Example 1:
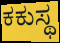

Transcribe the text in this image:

ಕಕುಸ್ಥ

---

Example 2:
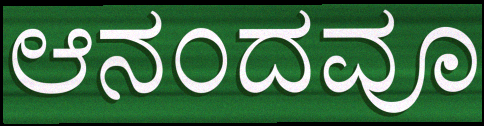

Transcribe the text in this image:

ಆನಂದವೂ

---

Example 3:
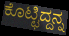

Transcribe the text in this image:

ಕೊಟ್ಟಿದ್ದನ್ನ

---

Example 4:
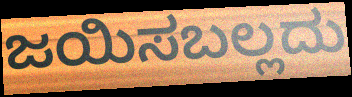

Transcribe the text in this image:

ಜಯಿಸಬಲ್ಲದು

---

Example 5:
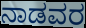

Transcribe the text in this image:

ನಾಡವರ